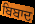
ਬਿਬਾਦ